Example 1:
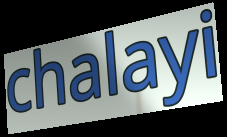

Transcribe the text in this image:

chalayi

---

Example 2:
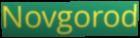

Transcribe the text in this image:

Novgorod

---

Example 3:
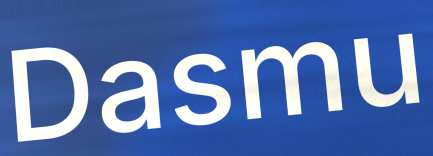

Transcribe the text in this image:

Dasmu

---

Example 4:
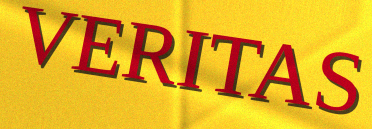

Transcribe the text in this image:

VERITAS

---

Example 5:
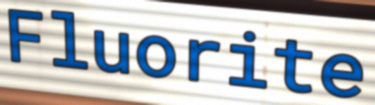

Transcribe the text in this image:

Fluorite